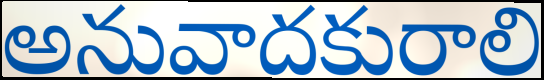
అనువాదకురాలి